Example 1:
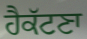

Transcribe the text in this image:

ਹੈਕੱਟਣਾ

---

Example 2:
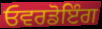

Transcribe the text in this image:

ਓਵਰਡੋਇੰਗ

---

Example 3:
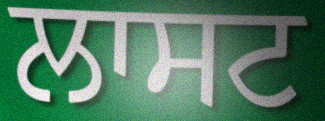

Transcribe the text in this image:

ਲਾਸਟ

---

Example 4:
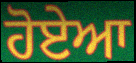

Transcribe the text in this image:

ਹੋਏਆ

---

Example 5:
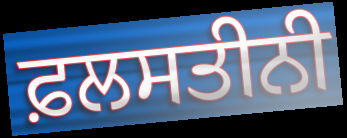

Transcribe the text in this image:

ਫ਼ਲਸਤੀਨੀ